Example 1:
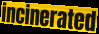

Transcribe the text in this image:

incinerated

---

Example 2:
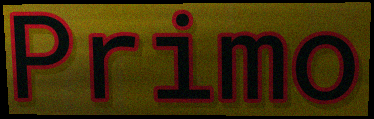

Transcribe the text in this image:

Primo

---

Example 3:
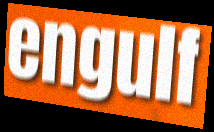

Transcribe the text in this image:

engulf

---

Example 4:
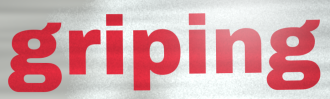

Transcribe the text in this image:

griping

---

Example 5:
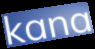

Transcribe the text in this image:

kana